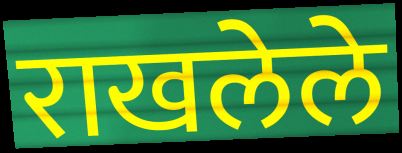
राखलेले